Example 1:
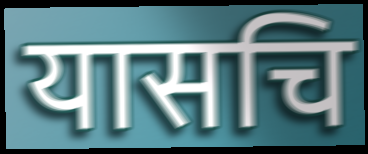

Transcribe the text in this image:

यासचि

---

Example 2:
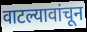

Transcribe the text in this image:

वाटल्यावांचून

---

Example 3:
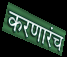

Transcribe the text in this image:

करणारंच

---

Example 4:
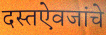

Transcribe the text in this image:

दस्तऐवजांचे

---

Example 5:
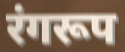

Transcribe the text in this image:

रंगरूप